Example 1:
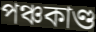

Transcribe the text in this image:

পঞ্চকাণ্ড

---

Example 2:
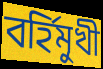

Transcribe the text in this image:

বর্হিমুখী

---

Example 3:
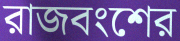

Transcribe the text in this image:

রাজবংশের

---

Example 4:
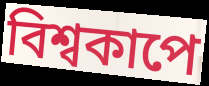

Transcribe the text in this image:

বিশ্বকাপে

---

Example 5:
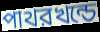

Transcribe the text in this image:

পাথরখন্ডে